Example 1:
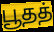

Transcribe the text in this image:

பூதத்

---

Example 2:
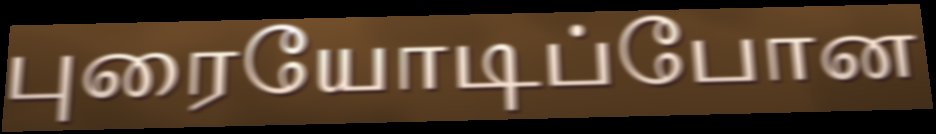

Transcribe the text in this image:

புரையோடிப்போன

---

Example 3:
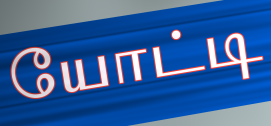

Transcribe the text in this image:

யோட்டி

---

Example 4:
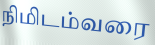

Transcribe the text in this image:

நிமிடம்வரை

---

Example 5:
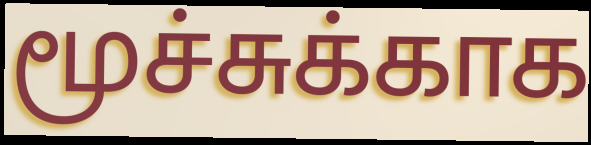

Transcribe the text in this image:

மூச்சுக்காக